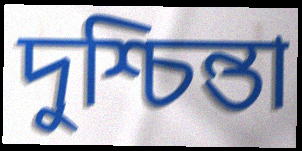
দুশ্চিন্তা